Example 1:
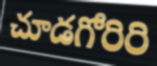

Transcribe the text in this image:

చూడగోరిరి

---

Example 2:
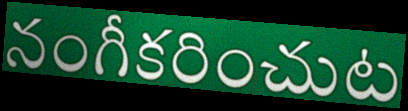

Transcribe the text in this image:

నంగీకరించుట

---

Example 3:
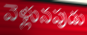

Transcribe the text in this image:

వెళ్లునపుడు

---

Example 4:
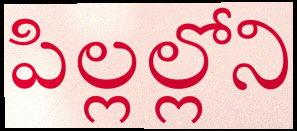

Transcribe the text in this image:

పిల్లల్లోని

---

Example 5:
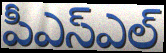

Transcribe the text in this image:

పీఎస్ఎల్